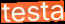
testa